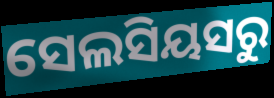
ସେଲସିୟସରୁ